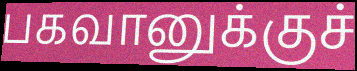
பகவானுக்குச்